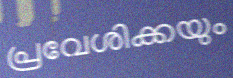
പ്രവേശിക്കയും